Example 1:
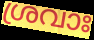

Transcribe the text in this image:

ശ്രവാഃ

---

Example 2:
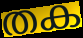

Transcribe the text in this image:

തക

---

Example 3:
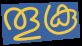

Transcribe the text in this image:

തൂകൂ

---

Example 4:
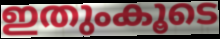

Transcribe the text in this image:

ഇതുംകൂടെ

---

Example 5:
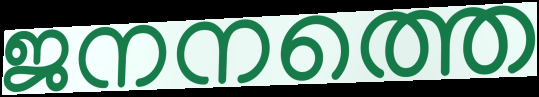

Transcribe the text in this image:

ജനനത്തെ